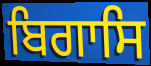
ਬਿਗਾਸਿ